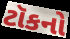
ટૉકનો